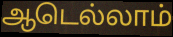
ஆடெல்லாம்